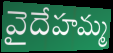
వైదేహమ్మ